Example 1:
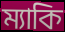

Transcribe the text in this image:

ম্যাকি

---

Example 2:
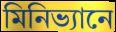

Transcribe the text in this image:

মিনিভ্যানে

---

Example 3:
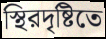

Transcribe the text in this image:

স্থিরদৃষ্টিতে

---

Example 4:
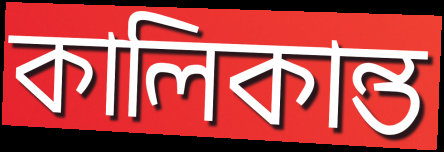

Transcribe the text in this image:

কালিকান্ত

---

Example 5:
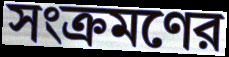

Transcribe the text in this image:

সংক্রমণের